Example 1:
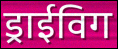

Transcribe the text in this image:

ड्राईविग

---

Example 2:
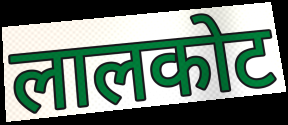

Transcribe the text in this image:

लालकोट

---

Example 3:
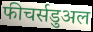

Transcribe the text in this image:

फीचर्सडुअल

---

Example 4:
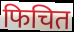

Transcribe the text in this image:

फिचित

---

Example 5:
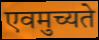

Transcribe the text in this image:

एवमुच्यते